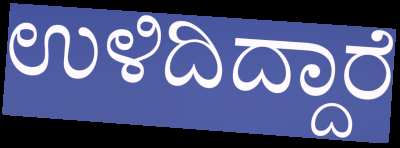
ಉಳಿದಿದ್ದಾರೆ